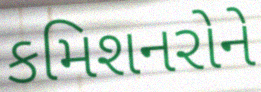
કમિશનરોને